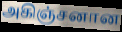
அகிஞ்சனான